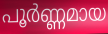
പൂർണ്ണമായ